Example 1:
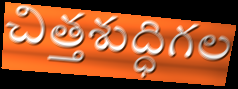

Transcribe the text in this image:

చిత్తశుద్ధిగల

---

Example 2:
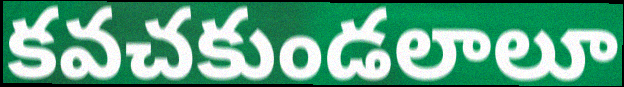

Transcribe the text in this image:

కవచకుండలాలూ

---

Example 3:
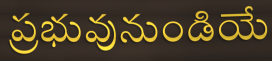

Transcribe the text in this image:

ప్రభువునుండియే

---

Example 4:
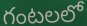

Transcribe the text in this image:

గంటలలో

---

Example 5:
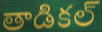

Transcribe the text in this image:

తాడికల్